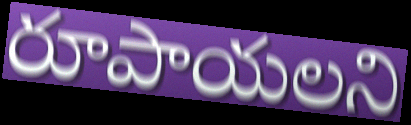
రూపాయలని